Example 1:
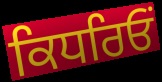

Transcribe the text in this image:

ਕਿਧਰਿਓਂ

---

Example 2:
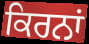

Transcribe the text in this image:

ਕਿਰਨਾਂ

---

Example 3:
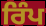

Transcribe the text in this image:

ਰਿੰਪ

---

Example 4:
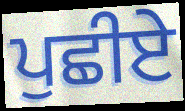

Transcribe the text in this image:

ਪੁਛੀਏ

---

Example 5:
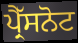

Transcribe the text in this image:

ਪ੍ਰੈੱਸਨੋਟ